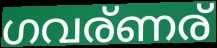
ഗവര്ണര്